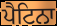
ਪੈਟਿਨਾ